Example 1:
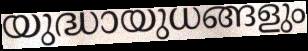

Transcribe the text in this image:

യുദ്ധായുധങ്ങളും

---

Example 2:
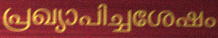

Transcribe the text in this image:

പ്രഖ്യാപിച്ചശേഷം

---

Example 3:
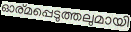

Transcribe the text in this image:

ഓര്മപ്പെടുത്തലുമായി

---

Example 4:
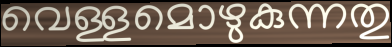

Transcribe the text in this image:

വെള്ളമൊഴുകുന്നതു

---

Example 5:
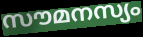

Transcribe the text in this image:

സൗമനസ്യം